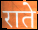
राते